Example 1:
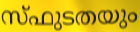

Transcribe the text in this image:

സ്ഫുടതയും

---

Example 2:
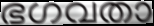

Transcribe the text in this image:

ഭഗവതാ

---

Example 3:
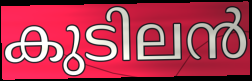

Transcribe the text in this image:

കുടിലൻ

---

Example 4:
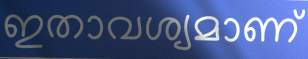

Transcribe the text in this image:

ഇതാവശ്യമാണ്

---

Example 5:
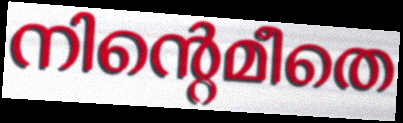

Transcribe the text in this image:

നിന്റെമീതെ